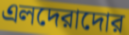
এলদেরাদোর